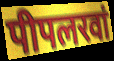
पीपलरवां